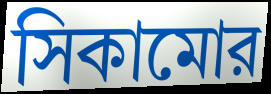
সিকামোর